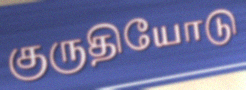
குருதியோடு